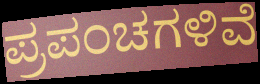
ಪ್ರಪಂಚಗಳಿವೆ